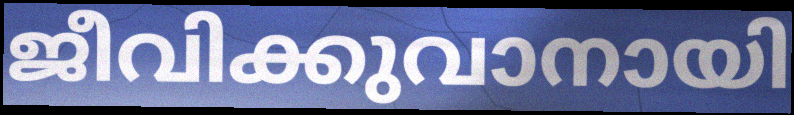
ജീവിക്കുവാനായി